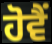
ਹੋਵੈਂ